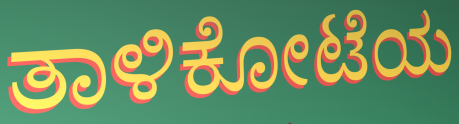
ತಾಳಿಕೋಟೆಯ